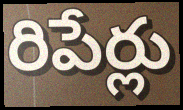
రిపేర్లు